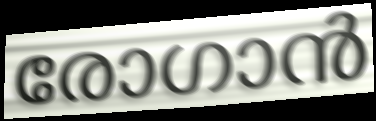
രോഗാൻ